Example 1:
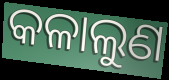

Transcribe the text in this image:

କଳାଲୁଣ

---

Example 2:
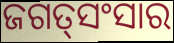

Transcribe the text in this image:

ଜଗତ୍‌ସଂସାର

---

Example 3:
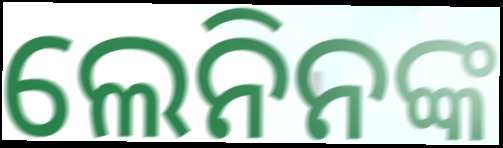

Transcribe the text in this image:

ଲେନିନଙ୍କ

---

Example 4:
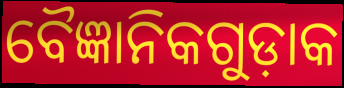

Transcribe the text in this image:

ବୈଜ୍ଞାନିକଗୁଡ଼ାକ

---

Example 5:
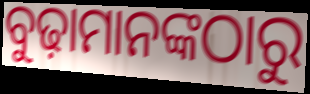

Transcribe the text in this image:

ବୁଢ଼ାମାନଙ୍କଠାରୁ